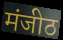
मंजीठ